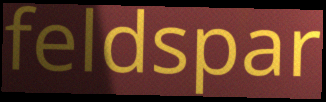
feldspar